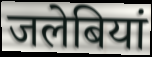
जलेबियां